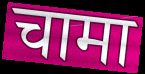
चामा